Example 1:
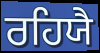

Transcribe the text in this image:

ਰਹਿਯੈ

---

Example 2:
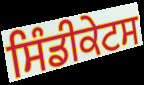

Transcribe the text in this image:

ਸਿੰਡੀਕੇਟਸ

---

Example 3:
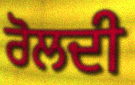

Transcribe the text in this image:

ਰੋਲਦੀ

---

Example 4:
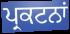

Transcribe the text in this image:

ਪ੍ਰਕਟਨਾਂ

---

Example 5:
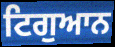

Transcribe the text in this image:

ਟਿਗੁਆਨ